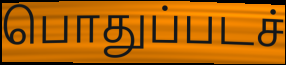
பொதுப்படச்